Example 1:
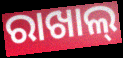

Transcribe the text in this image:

ରାଖାଲ୍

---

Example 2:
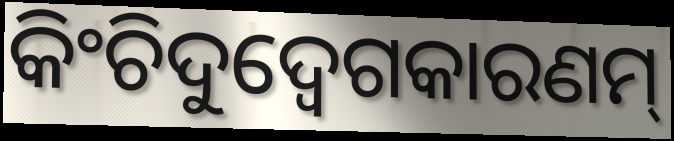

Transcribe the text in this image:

କିଂଚିଦୁଦ୍ବେଗକାରଣମ୍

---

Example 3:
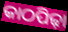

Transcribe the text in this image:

କାଠପିଢ଼ା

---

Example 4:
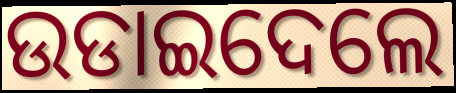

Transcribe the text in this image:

ଉଡାଇଦେଲେ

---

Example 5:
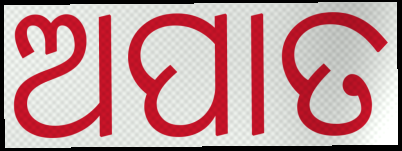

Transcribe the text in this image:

ଅପାତ